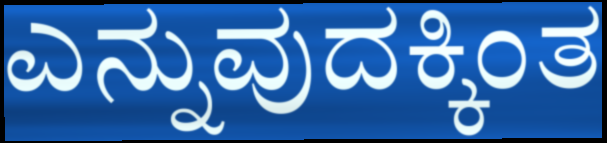
ಎನ್ನುವುದಕ್ಕಿಂತ